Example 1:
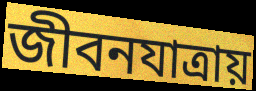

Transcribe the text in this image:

জীবনযাত্রায়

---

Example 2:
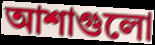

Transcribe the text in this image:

আশাগুলো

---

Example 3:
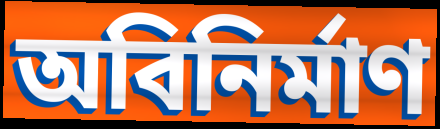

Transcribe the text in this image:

অবিনির্মাণ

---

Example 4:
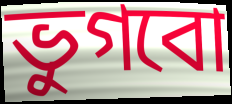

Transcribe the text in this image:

ভুগবো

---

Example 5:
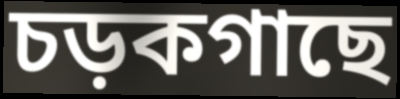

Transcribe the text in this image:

চড়কগাছে